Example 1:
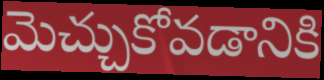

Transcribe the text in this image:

మెచ్చుకోవడానికి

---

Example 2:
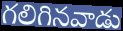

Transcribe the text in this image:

గలిగినవాడు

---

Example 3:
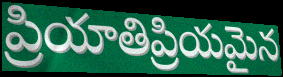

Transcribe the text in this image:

ప్రియాతిప్రియమైన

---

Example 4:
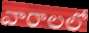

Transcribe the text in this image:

వారాలలో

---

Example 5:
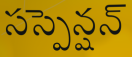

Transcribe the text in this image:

సస్పెన్షన్